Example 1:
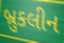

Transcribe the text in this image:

બ્રુકલીન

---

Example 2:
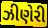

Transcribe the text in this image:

ઝીણેરી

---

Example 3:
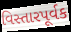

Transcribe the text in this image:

વિસ્તારપૂર્વક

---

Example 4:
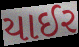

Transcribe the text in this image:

યાઈર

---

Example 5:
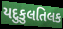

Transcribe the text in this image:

યદુકુલતિલક